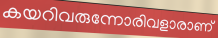
കയറിവരുന്നോരിവളാരാണ്